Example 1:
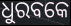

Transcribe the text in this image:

ଧୁରବକେ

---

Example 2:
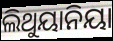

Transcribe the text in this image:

ଲିଥୁୟାନିୟା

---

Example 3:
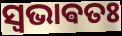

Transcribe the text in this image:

ସ୍ଵଭାଵତଃ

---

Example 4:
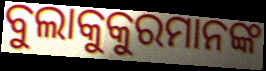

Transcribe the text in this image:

ବୁଲାକୁକୁରମାନଙ୍କ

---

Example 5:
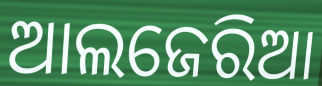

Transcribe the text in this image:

ଆଲଜେରିଆ